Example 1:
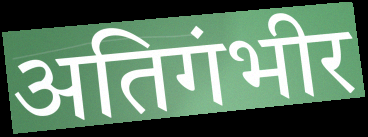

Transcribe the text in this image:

अतिगंभीर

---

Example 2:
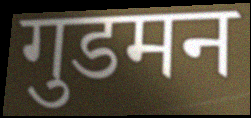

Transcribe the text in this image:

गुडमन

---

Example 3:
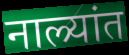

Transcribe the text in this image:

नाल्यांत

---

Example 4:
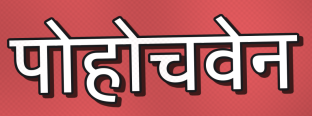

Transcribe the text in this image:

पोहोचवेन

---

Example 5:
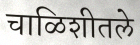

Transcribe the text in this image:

चाळिशीतले